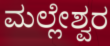
ಮಲ್ಲೇಶ್ವರ